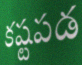
కష్టపడ